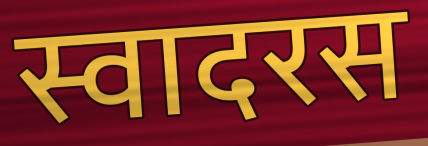
स्वादरस